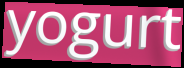
yogurt